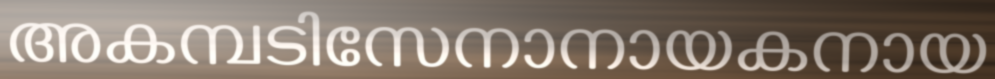
അകമ്പടിസേനാനായകനായ